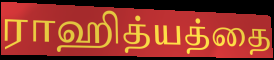
ராஹித்யத்தை